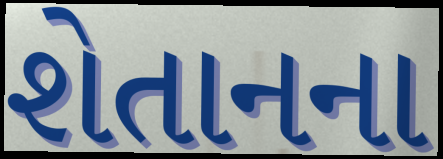
શેતાનના